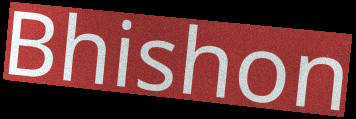
Bhishon